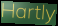
Hartly